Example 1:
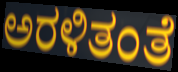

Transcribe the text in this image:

ಅರಳಿತಂತೆ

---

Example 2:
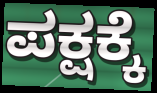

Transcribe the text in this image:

ಪಕ್ಷಕ್ಕೆ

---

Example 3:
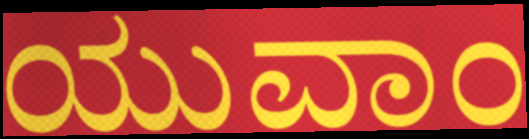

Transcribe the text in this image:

ಯುವಾಂ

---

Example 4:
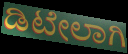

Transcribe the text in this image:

ಡಿಟೇಲಾಗಿ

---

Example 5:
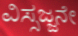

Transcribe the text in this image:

ವಿಸ್ಸಜ್ಜನೇ